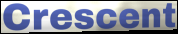
Crescent